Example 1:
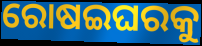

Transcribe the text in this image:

ରୋଷଇଘରକୁ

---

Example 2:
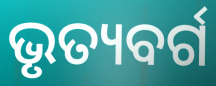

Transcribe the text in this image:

ଭୃତ୍ୟବର୍ଗ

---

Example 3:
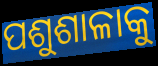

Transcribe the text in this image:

ପଶୁଶାଳାକୁ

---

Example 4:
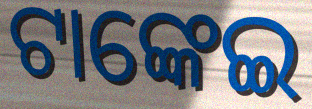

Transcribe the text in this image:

ଟାଙ୍କେଇ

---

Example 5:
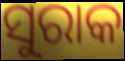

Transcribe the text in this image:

ସୁରାକ